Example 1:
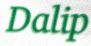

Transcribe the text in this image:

Dalip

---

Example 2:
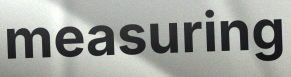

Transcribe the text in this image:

measuring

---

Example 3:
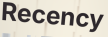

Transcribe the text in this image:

Recency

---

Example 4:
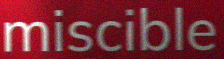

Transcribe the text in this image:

miscible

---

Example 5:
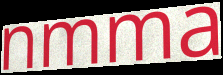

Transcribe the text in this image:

nmma